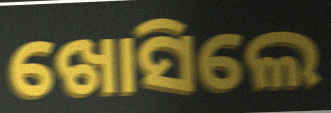
ଖୋସିଲେ